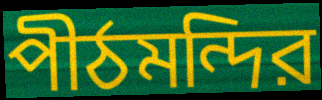
পীঠমন্দির